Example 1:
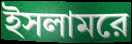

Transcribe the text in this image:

ইসলামরে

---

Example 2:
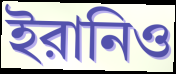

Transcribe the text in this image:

ইরানিও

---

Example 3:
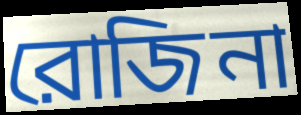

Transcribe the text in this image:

রোজিনা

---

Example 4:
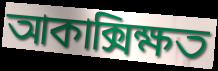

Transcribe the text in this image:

আকাক্সিক্ষত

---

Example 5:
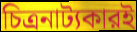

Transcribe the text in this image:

চিত্রনাট্যকারই